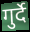
गुर्दे